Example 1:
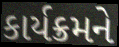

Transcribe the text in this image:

કાર્યક્રમને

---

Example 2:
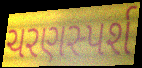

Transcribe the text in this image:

ચરણસ્પર્શ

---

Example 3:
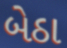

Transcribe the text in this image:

બેઠા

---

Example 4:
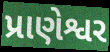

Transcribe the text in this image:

પ્રાણેશ્વર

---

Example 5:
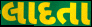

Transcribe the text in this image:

લાદતા